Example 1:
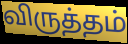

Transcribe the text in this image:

விருத்தம்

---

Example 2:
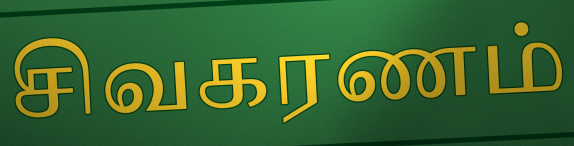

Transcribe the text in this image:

சிவகரணம்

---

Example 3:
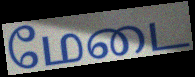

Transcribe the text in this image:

மேடை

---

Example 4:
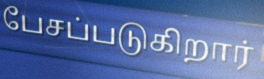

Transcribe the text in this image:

பேசப்படுகிறார்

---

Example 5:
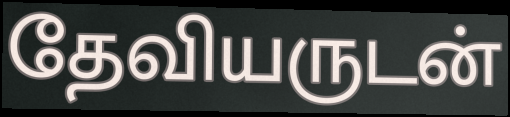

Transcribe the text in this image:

தேவியருடன்